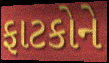
ફાટકોને